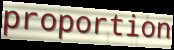
proportion